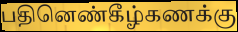
பதினெண்கீழ்கணக்கு